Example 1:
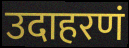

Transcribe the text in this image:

उदाहरणं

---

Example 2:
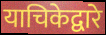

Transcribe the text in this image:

याचिकेद्वारे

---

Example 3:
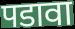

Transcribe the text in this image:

पडावा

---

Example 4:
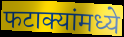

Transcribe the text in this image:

फटाक्यांमध्ये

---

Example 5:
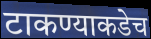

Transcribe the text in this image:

टाकण्याकडेच